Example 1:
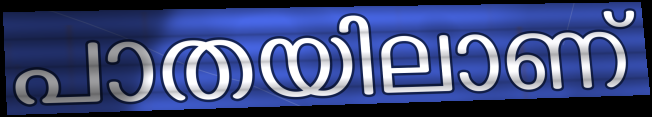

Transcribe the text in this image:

പാതയിലാണ്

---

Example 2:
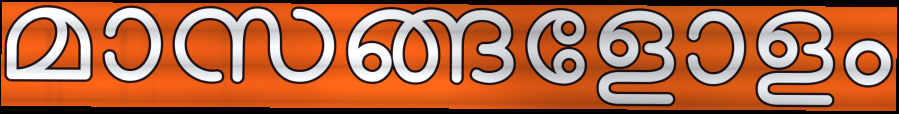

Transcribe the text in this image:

മാസങ്ങളോളം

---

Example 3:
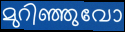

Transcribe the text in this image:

മുറിഞ്ഞുവോ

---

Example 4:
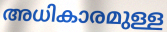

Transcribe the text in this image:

അധികാരമുള്ള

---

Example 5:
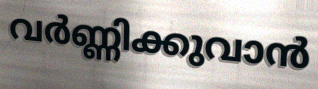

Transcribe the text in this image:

വർണ്ണിക്കുവാൻ